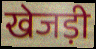
खेजड़ी